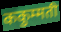
ककुम्मती